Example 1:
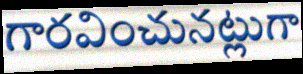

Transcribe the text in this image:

గారవించునట్లుగా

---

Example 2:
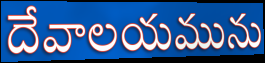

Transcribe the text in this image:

దేవాలయమును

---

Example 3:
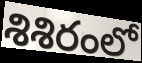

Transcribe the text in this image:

శిశిరంలో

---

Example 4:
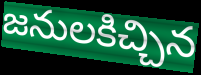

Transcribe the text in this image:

జనులకిచ్చిన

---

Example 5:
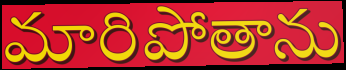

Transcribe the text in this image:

మారిపోతాను